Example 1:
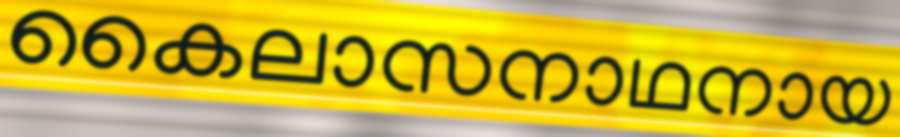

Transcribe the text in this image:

കൈലാസനാഥനായ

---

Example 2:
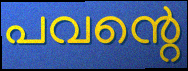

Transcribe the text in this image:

പവന്റെ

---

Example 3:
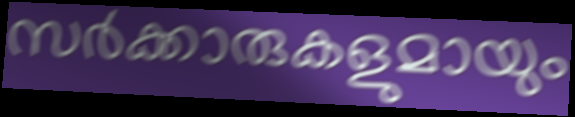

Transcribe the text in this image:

സർക്കാരുകളുമായും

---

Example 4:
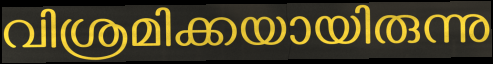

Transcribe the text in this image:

വിശ്രമിക്കയായിരുന്നു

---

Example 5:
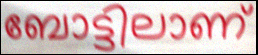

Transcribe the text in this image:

ബോട്ടിലാണ്